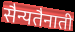
सैन्यतैनाती